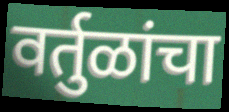
वर्तुळांचा